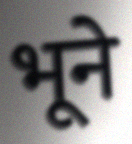
भूने